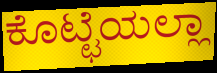
ಕೊಟ್ಟೆಯಲ್ಲಾ